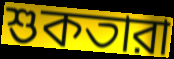
শুকতারা